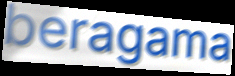
beragama